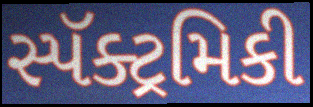
સ્પૅક્ટ્રમિકી